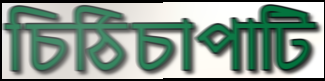
চিঠিচাপাটি